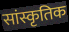
सांस्कृतिक